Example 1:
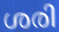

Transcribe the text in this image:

ശരി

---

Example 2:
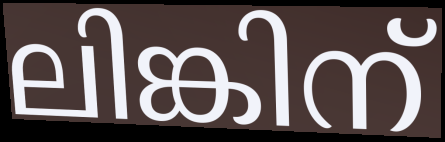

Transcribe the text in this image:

ലിങ്കിന്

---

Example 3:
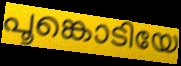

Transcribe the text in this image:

പൂങ്കൊടിയേ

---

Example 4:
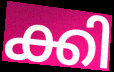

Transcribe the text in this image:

ക്കി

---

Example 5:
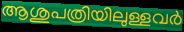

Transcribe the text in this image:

ആശുപത്രിയിലുള്ളവർ